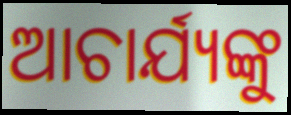
ଆଚାର୍ଯ୍ୟଙ୍କୁ